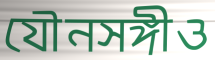
যৌনসঙ্গীও